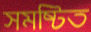
সমষ্টিত